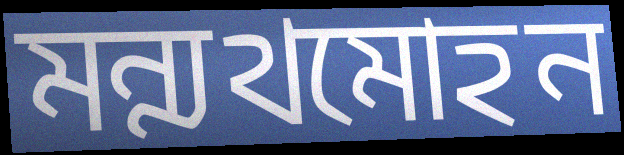
মন্মথমোহন